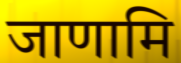
जाणामि